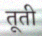
तूती